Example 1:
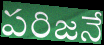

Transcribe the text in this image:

పరిజనే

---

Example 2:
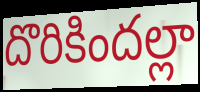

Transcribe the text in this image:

దొరికిందల్లా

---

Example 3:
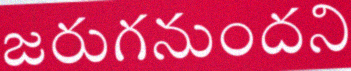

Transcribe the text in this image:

జరుగనుందని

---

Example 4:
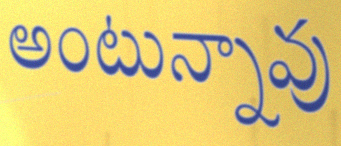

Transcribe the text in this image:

అంటున్నావు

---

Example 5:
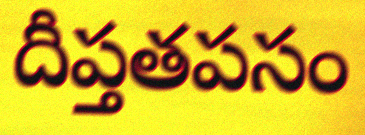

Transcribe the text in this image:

దీప్తతపసం